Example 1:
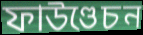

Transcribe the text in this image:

ফাউণ্ডেচন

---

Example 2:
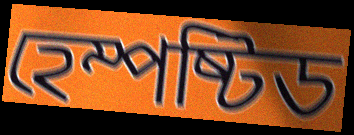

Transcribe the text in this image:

হেম্পষ্টিড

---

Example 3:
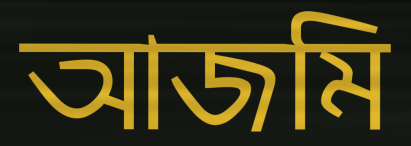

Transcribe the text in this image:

আজমি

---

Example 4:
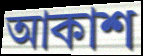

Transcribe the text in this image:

আকাশ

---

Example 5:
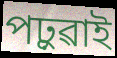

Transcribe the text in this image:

পঢ়ুৱাই